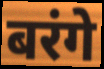
बरंगे